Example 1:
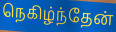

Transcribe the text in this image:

நெகிழ்ந்தேன்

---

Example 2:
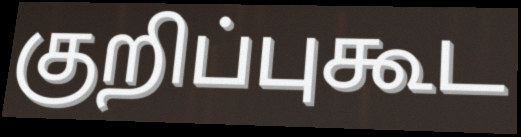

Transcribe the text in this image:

குறிப்புகூட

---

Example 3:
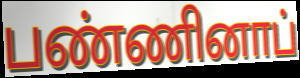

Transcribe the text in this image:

பண்ணினாப்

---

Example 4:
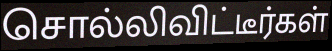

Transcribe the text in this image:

சொல்லிவிட்டீர்கள்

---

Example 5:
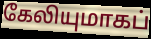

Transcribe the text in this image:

கேலியுமாகப்